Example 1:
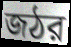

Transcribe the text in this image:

জঠর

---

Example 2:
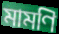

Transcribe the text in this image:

মামণি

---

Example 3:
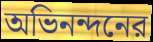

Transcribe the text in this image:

অভিনন্দনের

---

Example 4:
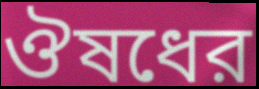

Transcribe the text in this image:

ঔষধের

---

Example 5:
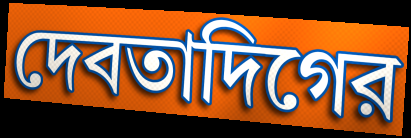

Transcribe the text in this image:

দেবতাদিগের